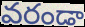
వరండా